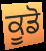
ਕੂਡੋ